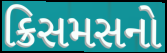
ક્રિસમસનો